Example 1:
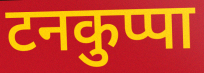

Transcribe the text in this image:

टनकुप्पा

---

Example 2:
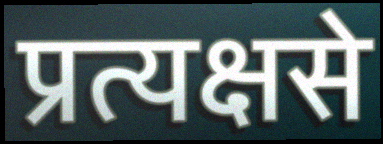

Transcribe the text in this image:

प्रत्यक्षसे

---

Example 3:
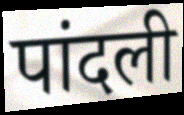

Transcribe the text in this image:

पांदली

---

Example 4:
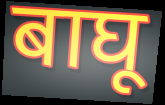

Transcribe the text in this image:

बाघू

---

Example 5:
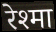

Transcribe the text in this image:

रेश्मा